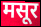
मसूर